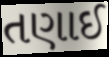
તણાઈ